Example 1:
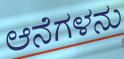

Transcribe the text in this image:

ಆನೆಗಳನು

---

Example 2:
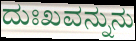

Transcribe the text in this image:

ದುಃಖವನ್ನುನು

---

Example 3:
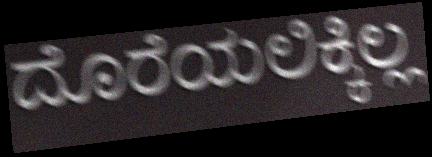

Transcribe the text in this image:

ದೊರೆಯಲಿಕ್ಕಿಲ್ಲ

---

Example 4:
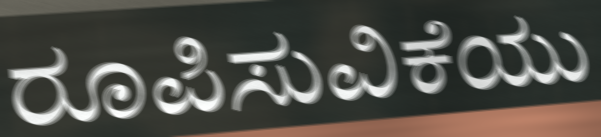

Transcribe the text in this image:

ರೂಪಿಸುವಿಕೆಯು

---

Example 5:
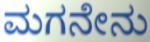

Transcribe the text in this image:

ಮಗನೇನು